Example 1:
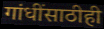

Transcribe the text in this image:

गांधींसाठीही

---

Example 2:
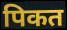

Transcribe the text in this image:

पिकत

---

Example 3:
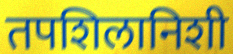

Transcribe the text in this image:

तपशिलानिशी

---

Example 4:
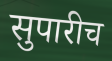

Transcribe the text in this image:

सुपारीच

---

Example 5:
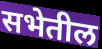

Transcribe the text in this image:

सभेतील